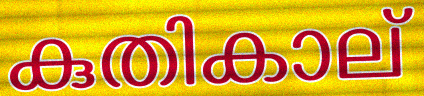
കുതികാല്